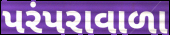
પરંપરાવાળા